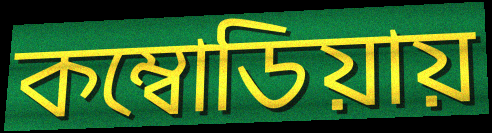
কম্বোডিয়ায়